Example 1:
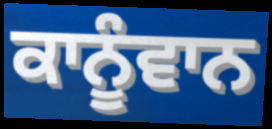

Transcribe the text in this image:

ਕਾਨੂੰਵਾਨ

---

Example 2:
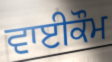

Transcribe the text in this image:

ਵਾਈਕੌਮ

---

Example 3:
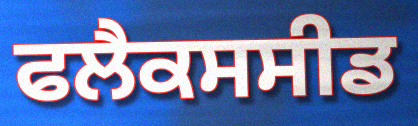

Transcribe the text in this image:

ਫਲੈਕਸਸੀਡ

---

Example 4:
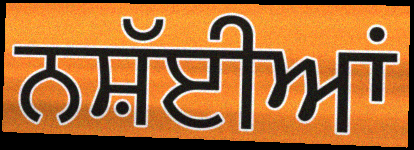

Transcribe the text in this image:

ਨਸ਼ੱਈਆਂ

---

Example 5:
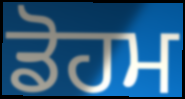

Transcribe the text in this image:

ਡੋਹਮ